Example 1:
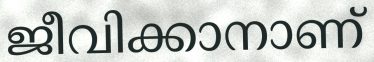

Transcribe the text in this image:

ജീവിക്കാനാണ്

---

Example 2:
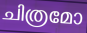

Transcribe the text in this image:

ചിത്രമോ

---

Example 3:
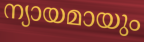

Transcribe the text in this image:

ന്യായമായും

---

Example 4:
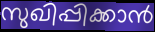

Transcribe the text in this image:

സുഖിപ്പിക്കാൻ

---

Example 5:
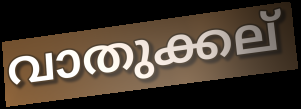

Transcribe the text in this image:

വാതുക്കല്